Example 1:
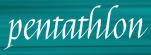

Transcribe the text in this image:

pentathlon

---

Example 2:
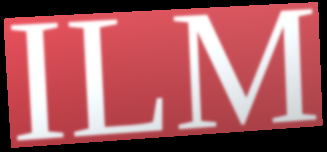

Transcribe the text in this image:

ILM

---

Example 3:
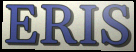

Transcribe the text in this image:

ERIS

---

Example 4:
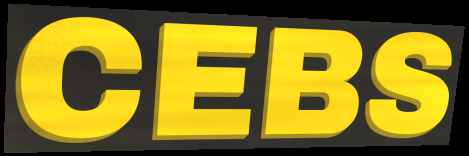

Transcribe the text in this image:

CEBS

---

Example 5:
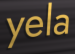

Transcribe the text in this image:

yela